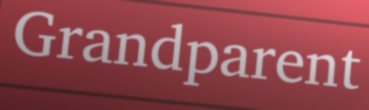
Grandparent